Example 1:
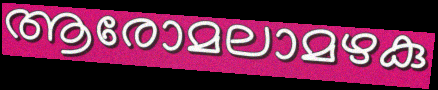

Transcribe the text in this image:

ആരോമലാമഴകു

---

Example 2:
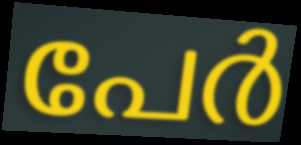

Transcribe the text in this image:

പേർ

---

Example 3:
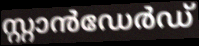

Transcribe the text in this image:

സ്റ്റാൻഡേർഡ്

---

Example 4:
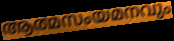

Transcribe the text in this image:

ആത്മസംയമനവും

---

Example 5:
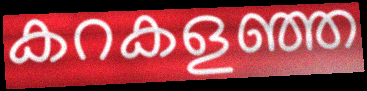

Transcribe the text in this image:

കറകളഞ്ഞ